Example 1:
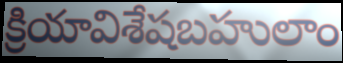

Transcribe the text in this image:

క్రియావిశేషబహులాం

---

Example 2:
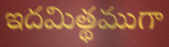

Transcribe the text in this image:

ఇదమిత్థముగా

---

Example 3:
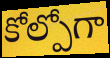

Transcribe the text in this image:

కోల్పోగా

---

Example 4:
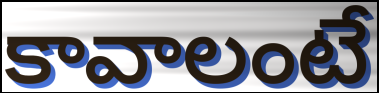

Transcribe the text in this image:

కావాలంటే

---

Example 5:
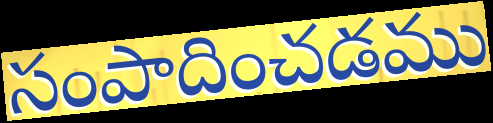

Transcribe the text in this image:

సంపాదించడము